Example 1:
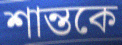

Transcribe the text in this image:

শান্তকে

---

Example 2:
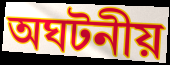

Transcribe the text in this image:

অঘটনীয়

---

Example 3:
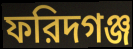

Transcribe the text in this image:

ফরিদগঞ্জ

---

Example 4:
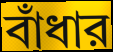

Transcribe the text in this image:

বাঁধার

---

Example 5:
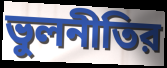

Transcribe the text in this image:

ভুলনীতির